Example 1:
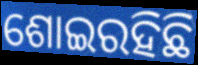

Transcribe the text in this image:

ଶୋଇରହିଛି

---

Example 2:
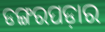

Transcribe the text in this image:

ଡଙ୍ଗରପଡ଼ାର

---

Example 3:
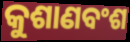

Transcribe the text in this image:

କୁଶାଣବଂଶ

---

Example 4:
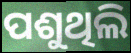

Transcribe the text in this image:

ପଶୁଥିଲି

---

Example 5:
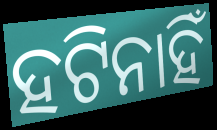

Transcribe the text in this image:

ହଟିନାହିଁ